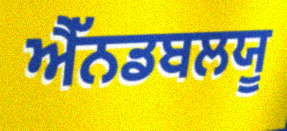
ਐੱਨਡਬਲਯੂ